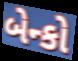
બેન્કો